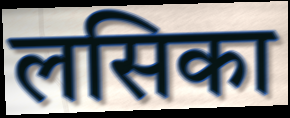
लसिका